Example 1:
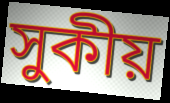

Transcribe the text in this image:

সুকীয়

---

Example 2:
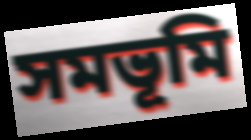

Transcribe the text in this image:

সমভূমি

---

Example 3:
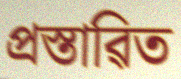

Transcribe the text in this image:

প্ৰস্তাৱিত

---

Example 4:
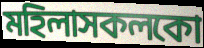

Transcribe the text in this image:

মহিলাসকলকো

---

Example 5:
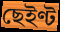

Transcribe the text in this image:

ছেইণ্ট